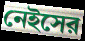
নেইসের